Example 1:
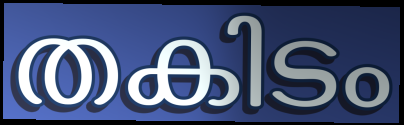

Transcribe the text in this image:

തകിടം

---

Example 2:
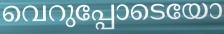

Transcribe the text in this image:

വെറുപ്പോടെയോ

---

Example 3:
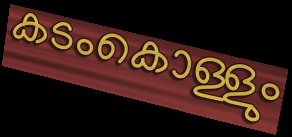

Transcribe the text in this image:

കടംകൊള്ളും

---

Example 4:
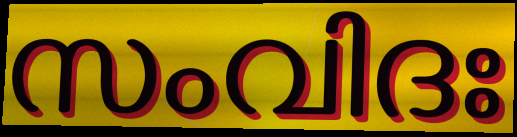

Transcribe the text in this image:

സംവിദഃ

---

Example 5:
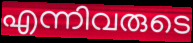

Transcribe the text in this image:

എന്നിവരുടെ